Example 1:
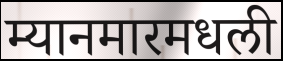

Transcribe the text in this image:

म्यानमारमधली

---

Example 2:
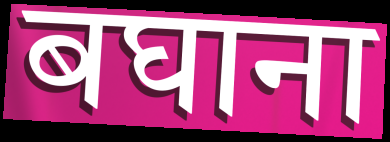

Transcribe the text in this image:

बघाना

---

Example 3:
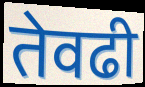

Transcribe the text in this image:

तेवढी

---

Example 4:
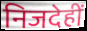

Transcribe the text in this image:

निजदेहीं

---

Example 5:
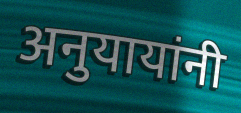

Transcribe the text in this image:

अनुयायांनी